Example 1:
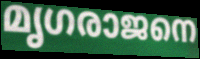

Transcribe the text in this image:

മൃഗരാജനെ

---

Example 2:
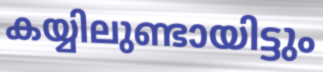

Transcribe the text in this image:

കയ്യിലുണ്ടായിട്ടും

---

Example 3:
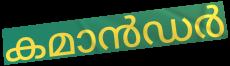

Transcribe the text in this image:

കമാൻഡർ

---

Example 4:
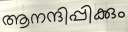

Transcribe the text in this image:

ആനന്ദിപ്പിക്കും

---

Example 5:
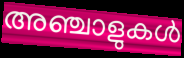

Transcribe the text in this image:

അഞ്ചാളുകൾ